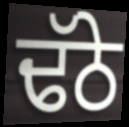
ਢੱਠੇ